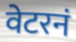
वेटरनं